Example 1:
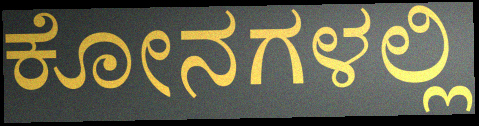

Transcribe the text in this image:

ಕೋನಗಳಲ್ಲಿ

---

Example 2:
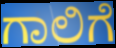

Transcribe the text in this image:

ಗಾಲಿಗೆ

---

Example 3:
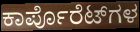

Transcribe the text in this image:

ಕಾರ್ಪೊರೆಟ್‌ಗಳ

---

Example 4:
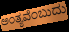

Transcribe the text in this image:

ಅಂತ್ಯವೆಂಬುದು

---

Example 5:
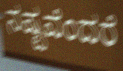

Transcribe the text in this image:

ನಷ್ಟವೆಂದರೆ